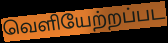
வெளியேற்றப்பட